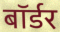
बॉर्डर